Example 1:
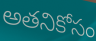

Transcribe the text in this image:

అతనికోసం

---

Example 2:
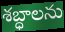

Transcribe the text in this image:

శబ్ధాలను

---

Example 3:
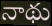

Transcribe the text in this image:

నాథు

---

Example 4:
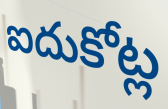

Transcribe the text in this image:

ఐదుకోట్ల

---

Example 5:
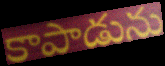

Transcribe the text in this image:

కాపాడును